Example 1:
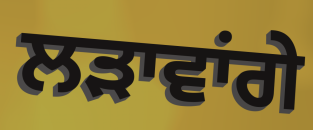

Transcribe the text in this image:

ਲੜਾਵਾਂਗੇ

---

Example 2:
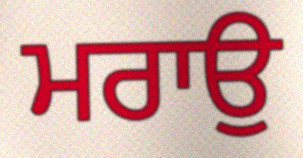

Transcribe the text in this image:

ਮਰਾਉ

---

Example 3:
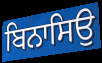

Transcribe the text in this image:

ਬਿਨਾਸਿਉ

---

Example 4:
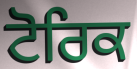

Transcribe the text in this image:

ਟੋਰਿਕ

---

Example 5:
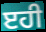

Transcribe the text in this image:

ੲਹੀ